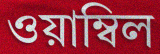
ওয়াম্বিল